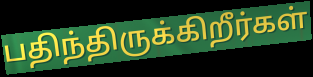
பதிந்திருக்கிறீர்கள்